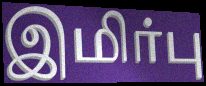
இமிர்பு